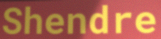
Shendre